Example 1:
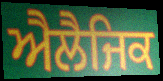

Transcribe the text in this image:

ਐਲੈਜਿਕ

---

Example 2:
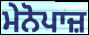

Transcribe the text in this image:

ਮੇਨੋਪਾਜ਼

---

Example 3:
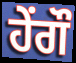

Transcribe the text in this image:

ਹੇਂਗੌ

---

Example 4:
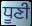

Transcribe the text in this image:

ਧੂਣੀ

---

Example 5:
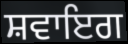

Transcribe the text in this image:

ਸ਼ਵਾਇਗ